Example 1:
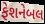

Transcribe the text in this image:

ફેશનેબલ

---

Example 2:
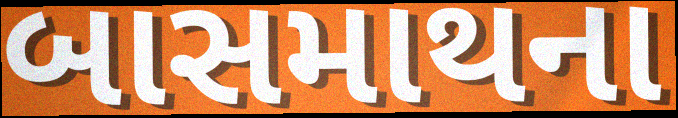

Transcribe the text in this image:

બાસમાથના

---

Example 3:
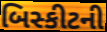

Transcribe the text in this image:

બિસ્કીટની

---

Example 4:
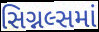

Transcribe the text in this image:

સિગ્નલ્સમાં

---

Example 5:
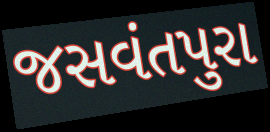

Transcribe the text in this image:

જસવંતપુરા